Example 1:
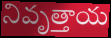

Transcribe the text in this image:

నివృత్తాయ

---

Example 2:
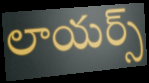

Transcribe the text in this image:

లాయర్స్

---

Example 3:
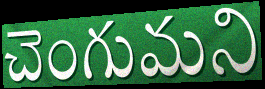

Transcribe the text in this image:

చెంగుమని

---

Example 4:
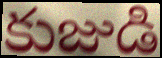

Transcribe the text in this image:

కుజుడి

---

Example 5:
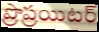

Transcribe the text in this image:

ప్రొప్రయిటర్